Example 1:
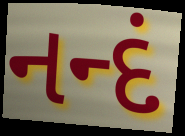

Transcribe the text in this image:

નન્દં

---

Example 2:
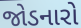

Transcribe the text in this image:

જોડનારો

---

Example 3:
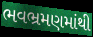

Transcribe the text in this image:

ભવભ્રમણમાંથી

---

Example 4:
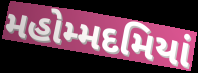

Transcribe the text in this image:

મહોમ્મદમિયાં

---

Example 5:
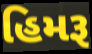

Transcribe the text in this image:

હિમરૂ